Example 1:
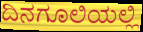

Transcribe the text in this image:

ದಿನಗೂಲಿಯಲ್ಲಿ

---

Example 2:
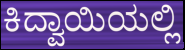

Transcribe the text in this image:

ಕಿದ್ವಾಯಿಯಲ್ಲಿ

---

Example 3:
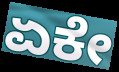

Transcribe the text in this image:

ಏಕೇ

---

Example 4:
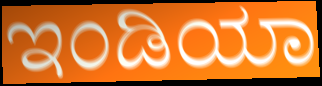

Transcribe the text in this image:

ಇಂಡಿಯಾ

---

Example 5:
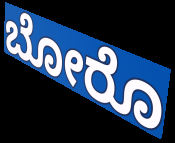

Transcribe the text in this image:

ಬೋರೊ